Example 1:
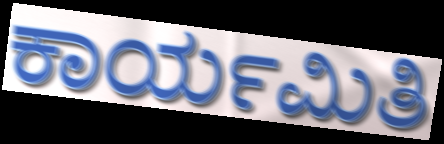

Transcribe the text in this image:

ಕಾರ್ಯಮಿತಿ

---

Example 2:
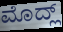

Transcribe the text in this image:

ಮೊದ್ಲ್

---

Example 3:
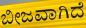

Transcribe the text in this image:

ಬೀಜವಾಗಿದೆ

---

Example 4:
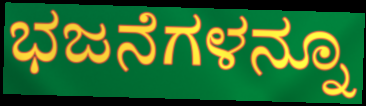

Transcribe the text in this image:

ಭಜನೆಗಳನ್ನೂ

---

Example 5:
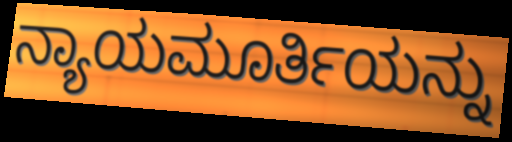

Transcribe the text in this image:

ನ್ಯಾಯಮೂರ್ತಿಯನ್ನು